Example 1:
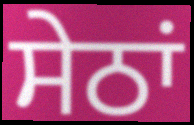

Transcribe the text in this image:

ਸੇਠਾਂ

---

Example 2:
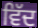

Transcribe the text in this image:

ਵਿੱਦ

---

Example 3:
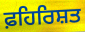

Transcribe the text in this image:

ਫ਼ਹਿਰਿਸ਼ਤ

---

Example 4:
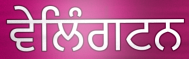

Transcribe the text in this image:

ਵੇਲਿੰਗਟਨ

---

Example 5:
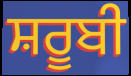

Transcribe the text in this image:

ਸ਼ਰੂਬੀ